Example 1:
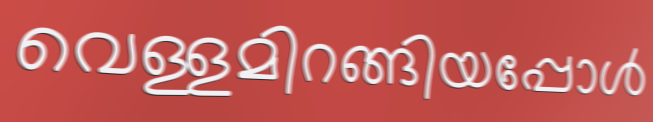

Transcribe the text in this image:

വെള്ളമിറങ്ങിയപ്പോൾ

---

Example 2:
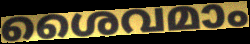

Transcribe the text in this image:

ശൈവമാം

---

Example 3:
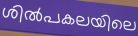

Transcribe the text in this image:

ശിൽപകലയിലെ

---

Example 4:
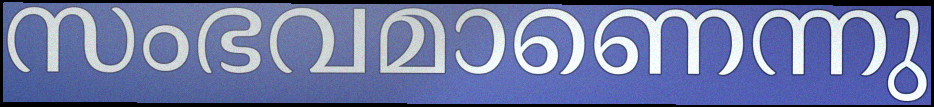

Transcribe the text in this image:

സംഭവമാണെന്നു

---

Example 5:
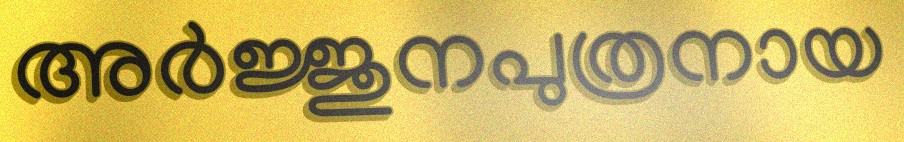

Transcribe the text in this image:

അർജ്ജുനപുത്രനായ